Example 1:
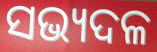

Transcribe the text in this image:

ସଭ୍ୟଦଳ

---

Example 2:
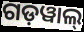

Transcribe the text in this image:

ଗଡ଼ୱାଲ୍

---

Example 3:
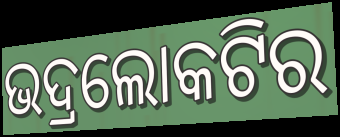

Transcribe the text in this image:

ଭଦ୍ରଲୋକଟିର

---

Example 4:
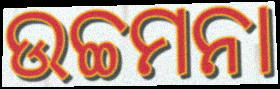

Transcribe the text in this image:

ଉଚ୍ଚମନା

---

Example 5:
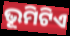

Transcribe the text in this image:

ଭୂମିଟିଏ